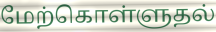
மேற்கொள்ளுதல்